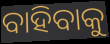
ବାହିବାକୁ